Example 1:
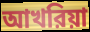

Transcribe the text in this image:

আখরিয়া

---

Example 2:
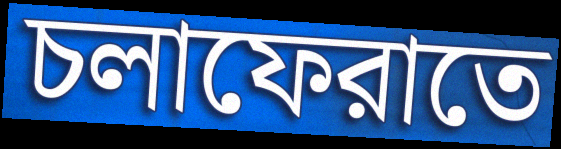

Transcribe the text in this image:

চলাফেরাতে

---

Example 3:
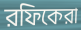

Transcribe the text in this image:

রফিকেরা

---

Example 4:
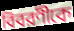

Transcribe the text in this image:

বিবরণীকে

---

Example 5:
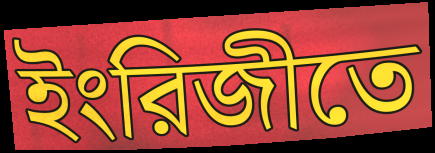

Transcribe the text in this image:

ইংরিজীতে